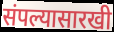
संपल्यासारखी